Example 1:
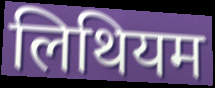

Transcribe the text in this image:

लिथियम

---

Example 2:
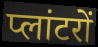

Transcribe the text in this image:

प्लांटरों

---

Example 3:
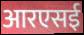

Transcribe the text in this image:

आरएसई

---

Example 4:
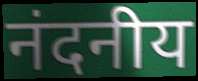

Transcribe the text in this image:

नंदनीय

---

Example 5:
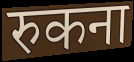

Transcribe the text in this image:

रुकना